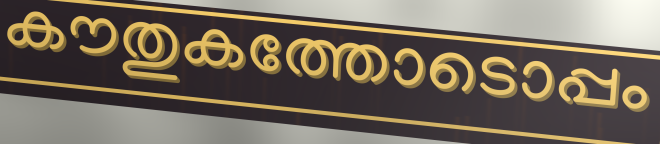
കൗതുകത്തോടൊപ്പം